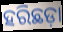
ହରିଛଡ଼ା